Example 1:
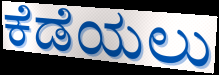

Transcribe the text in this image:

ಕೆಡೆಯಲು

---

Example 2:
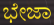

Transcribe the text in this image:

ಭೇಜಾ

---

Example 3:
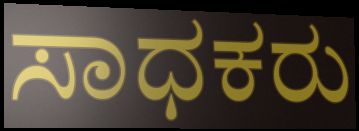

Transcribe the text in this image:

ಸಾಧಕರು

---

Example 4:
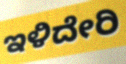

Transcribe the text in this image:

ಇಳಿದೇರಿ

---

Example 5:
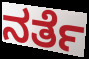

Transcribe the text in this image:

ನರ್ತೆ